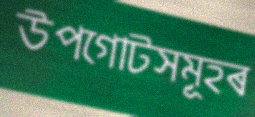
উপগোটসমূহৰ